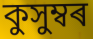
কুসুম্বৰ